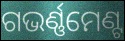
ଗଭର୍ଣ୍ଣମେଣ୍ଟ